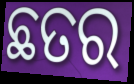
ଛତର